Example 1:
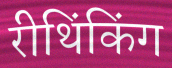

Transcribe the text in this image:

रीथिंकिंग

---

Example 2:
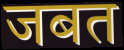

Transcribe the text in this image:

जबत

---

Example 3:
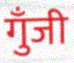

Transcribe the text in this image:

गुँजी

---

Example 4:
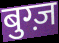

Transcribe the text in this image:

बुग्ज़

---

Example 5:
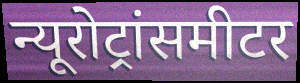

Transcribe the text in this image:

न्यूरोट्रांसमीटर